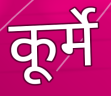
कूर्मे